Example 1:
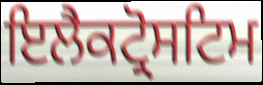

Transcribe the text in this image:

ਇਲੈਕਟ੍ਰੋਸਟਿਮ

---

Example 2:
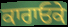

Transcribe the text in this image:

ਕਾਰਾਓਕੇ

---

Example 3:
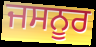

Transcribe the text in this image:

ਜਸਨੂਰ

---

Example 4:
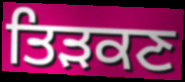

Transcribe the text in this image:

ਤਿੜਕਣ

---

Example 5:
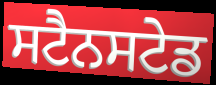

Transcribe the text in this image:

ਸਟੈਨਸਟੇਡ